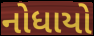
નોધાયો